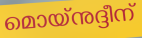
മൊയ്നുദ്ദീന്